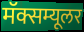
मॅक्सम्यूलर